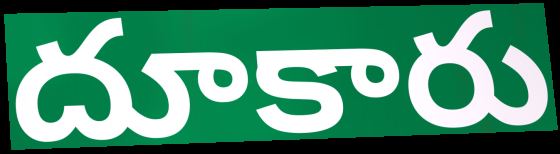
దూకారు